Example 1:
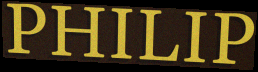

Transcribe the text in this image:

PHILIP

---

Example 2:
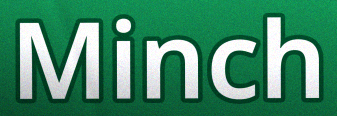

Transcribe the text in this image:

Minch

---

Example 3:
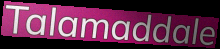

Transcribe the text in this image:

Talamaddale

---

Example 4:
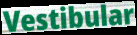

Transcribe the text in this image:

Vestibular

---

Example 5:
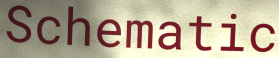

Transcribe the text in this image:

Schematic